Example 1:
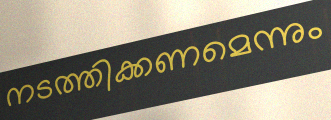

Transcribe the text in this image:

നടത്തിക്കണമെന്നും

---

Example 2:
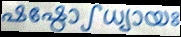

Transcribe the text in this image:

ഷഷ്ഠോഽധ്യായഃ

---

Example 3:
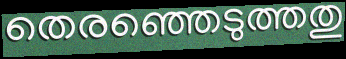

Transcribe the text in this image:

തെരഞ്ഞെടുത്തതു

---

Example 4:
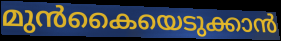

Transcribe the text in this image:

മുൻകൈയെടുക്കാൻ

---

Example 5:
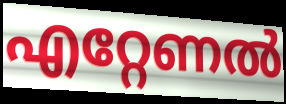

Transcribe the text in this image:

എറ്റേണൽ